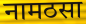
नामठसा